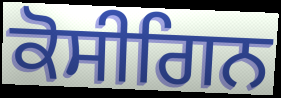
ਕੋਸੀਗਿਨ